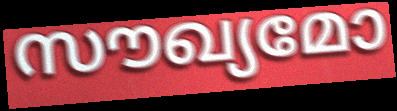
സൗഖ്യമോ